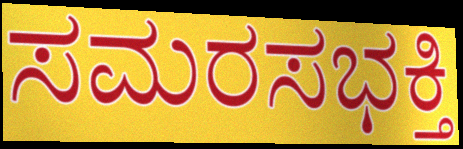
ಸಮರಸಭಕ್ತಿ